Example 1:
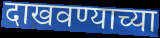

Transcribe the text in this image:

दाखवण्याच्या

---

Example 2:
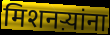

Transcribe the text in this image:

मिशनऱ्‍यांना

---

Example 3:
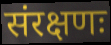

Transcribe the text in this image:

संरक्षणः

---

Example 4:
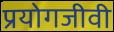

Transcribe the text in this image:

प्रयोगजीवी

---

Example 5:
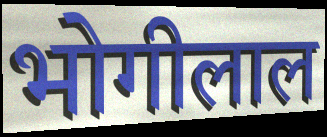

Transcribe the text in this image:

भोगीलाल